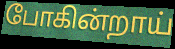
போகின்றாய்